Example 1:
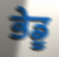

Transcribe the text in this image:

ਭੇਡੂ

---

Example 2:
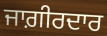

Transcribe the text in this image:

ਜਾਗ਼ੀਰਦਾਰ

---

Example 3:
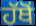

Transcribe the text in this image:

ਹੱਥੋਂ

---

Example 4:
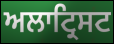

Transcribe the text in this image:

ਅਲਾਟ੍ਰਿਸਟ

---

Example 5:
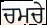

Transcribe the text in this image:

ਚਮਚੇ